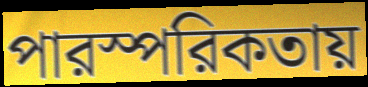
পারস্পরিকতায়